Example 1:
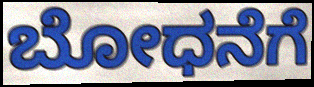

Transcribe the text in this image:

ಬೋಧನೆಗೆ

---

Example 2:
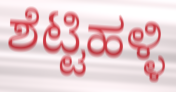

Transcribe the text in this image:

ಶೆಟ್ಟಿಹಳ್ಳಿ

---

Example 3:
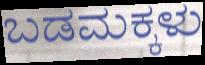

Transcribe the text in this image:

ಬಡಮಕ್ಕಳು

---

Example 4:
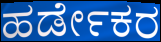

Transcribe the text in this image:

ಹರ್ಡೇಕರ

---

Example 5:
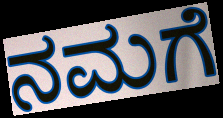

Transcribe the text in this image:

ನಮಗೆ